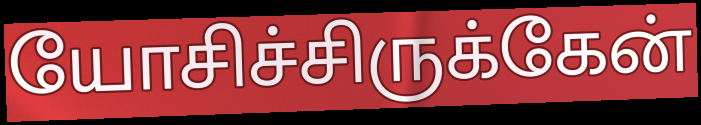
யோசிச்சிருக்கேன்